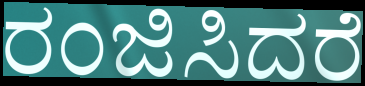
ರಂಜಿಸಿದರೆ